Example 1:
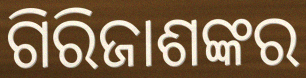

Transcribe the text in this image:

ଗିରିଜାଶଙ୍କର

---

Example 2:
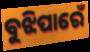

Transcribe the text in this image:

ବୁଝିପାରେଁ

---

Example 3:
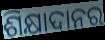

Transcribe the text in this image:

ଶିକ୍ଷାଦାନର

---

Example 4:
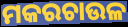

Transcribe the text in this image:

ମକରଚାଉଳ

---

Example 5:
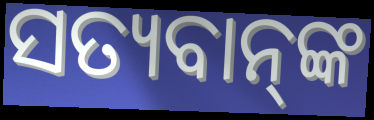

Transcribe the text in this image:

ସତ୍ୟବାନ୍‌ଙ୍କ